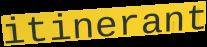
itinerant